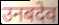
उनबदेव